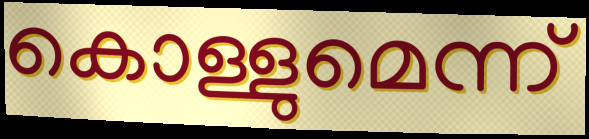
കൊള്ളുമെന്ന്